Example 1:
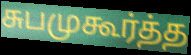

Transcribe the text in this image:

சுபமுகூர்த்த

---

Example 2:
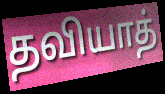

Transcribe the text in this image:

தவியாத்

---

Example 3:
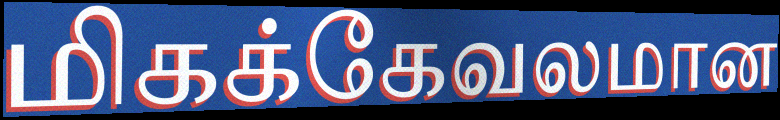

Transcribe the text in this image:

மிகக்கேவலமான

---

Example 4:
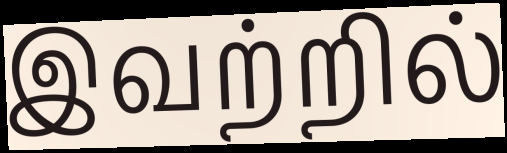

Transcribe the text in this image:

இவற்றில்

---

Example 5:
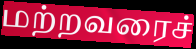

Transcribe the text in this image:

மற்றவரைச்